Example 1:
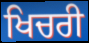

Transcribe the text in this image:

ਖਿਚਰੀ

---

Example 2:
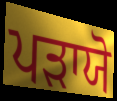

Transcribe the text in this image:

ਪੜਾਯੋ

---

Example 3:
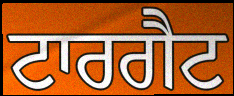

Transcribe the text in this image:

ਟਾਰਗੈਟ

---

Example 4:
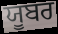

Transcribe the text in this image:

ਯੂਬਰ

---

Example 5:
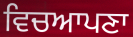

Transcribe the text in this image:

ਵਿਚਆਪਣਾ